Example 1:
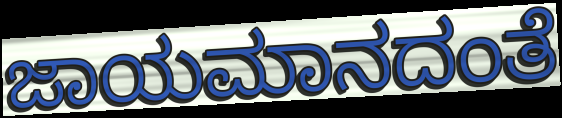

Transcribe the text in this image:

ಜಾಯಮಾನದಂತೆ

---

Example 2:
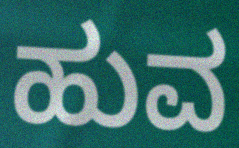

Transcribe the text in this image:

ಹುವ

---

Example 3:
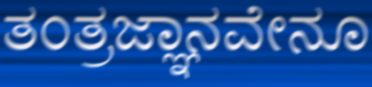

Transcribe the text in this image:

ತಂತ್ರಜ್ಞಾನವೇನೂ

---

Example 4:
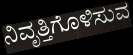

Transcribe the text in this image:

ನಿವೃತ್ತಿಗೊಳಿಸುವ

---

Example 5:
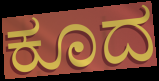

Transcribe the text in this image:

ಕೂದ